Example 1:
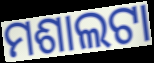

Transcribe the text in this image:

ମଶାଲଟା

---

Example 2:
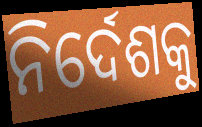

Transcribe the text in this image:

ନିର୍ଦେଶକୁ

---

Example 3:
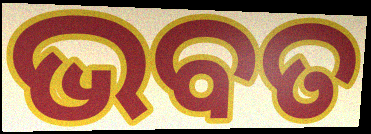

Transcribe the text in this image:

ଭବତ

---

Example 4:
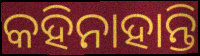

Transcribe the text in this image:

କହିନାହାନ୍ତି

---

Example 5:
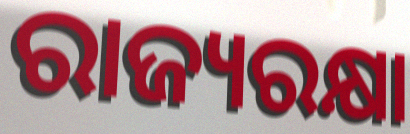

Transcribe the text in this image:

ରାଜ୍ୟରକ୍ଷା